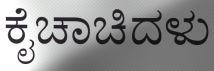
ಕೈಚಾಚಿದಳು